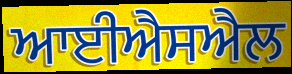
ਆਈਐਸਐਲ